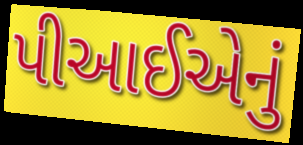
પીઆઈએનું